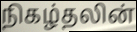
நிகழ்தலின்